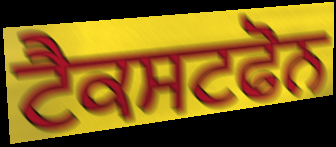
ਟੈਕਸਟਫੋਨ